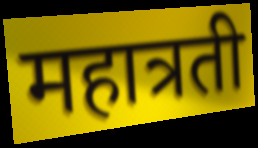
महात्रती